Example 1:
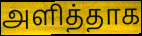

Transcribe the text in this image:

அளித்தாக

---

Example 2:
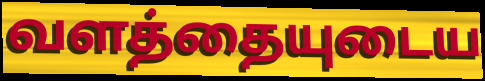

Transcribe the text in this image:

வளத்தையுடைய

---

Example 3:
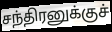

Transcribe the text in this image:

சந்திரனுக்குச்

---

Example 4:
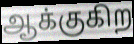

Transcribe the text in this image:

ஆக்குகிற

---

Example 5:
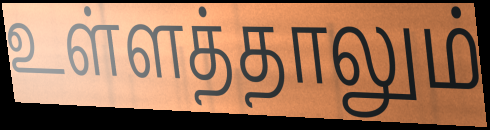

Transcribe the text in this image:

உள்ளத்தாலும்